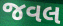
જવલ